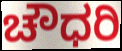
ಚೌಧರಿ